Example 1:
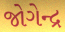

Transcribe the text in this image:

જોગેન્દ્ર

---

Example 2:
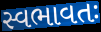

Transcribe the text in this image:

સ્વભાવતઃ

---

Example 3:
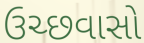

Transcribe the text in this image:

ઉચ્છવાસો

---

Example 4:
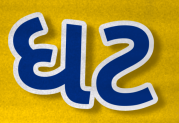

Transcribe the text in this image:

ધટ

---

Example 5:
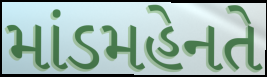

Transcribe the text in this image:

માંડમહેનતે